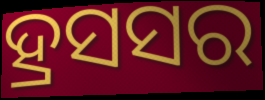
ହ୍ରସସର